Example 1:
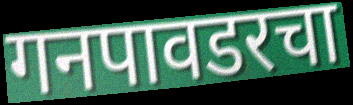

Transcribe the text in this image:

गनपावडरचा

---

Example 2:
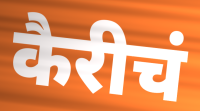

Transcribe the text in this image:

कैरीचं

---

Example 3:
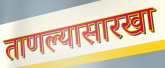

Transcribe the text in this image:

ताणल्यासारखा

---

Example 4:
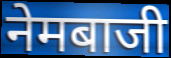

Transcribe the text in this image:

नेमबाजी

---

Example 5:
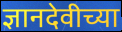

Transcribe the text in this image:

ज्ञानदेवीच्या